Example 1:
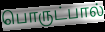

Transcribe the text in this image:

பொருட்பால்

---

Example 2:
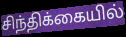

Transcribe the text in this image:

சிந்திக்கையில்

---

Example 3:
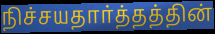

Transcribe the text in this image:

நிச்சயதார்த்தத்தின்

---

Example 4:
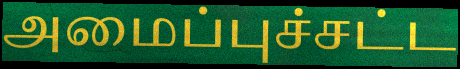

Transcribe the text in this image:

அமைப்புச்சட்ட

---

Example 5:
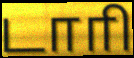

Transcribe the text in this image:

டாரி